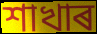
শাখাৰ